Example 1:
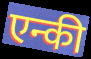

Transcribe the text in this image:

एन्की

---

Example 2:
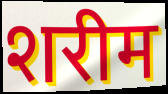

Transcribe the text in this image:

शरीम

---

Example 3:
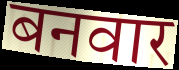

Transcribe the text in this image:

बनवार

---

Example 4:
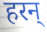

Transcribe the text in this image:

हरन्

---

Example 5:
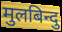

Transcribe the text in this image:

मुलबिन्दु